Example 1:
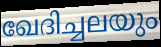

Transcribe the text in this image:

ഖേദിച്ചലയും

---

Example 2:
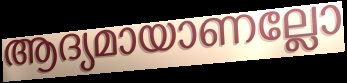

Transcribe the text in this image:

ആദ്യമായാണല്ലോ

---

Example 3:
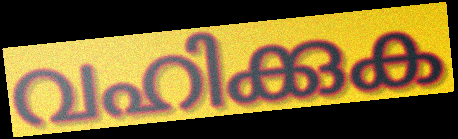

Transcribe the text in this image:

വഹിക്കുക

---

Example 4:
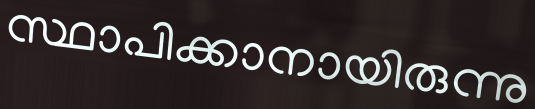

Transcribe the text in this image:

സ്ഥാപിക്കാനായിരുന്നു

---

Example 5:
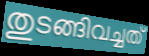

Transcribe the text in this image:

തുടങ്ങിവച്ചത്